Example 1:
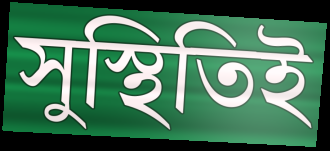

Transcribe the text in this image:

সুস্থিতিই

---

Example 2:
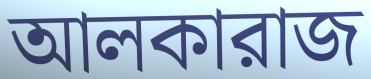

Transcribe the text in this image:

আলকারাজ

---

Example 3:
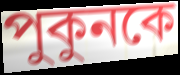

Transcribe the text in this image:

পুকুনকে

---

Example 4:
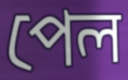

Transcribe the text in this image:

পেল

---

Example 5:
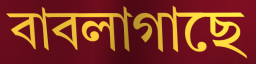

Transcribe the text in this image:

বাবলাগাছে